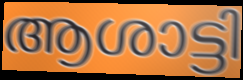
ആശാട്ടി